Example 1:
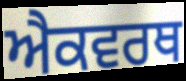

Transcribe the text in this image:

ਐਕਵਰਥ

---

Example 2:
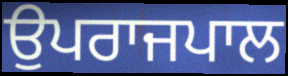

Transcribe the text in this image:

ਉਪਰਾਜਪਾਲ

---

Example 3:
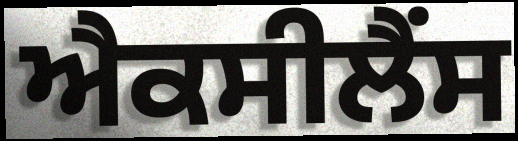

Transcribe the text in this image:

ਐਕਸੀਲੈਂਸ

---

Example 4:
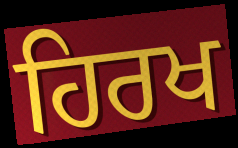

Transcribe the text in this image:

ਹਿਰਖ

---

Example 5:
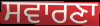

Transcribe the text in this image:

ਸਵਾਰਣਾ